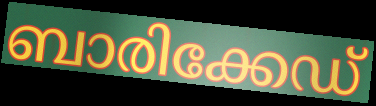
ബാരിക്കേഡ്